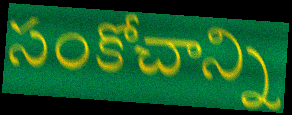
సంకోచాన్ని